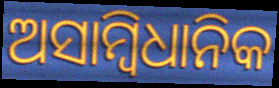
ଅସାମ୍ବିଧାନିକ